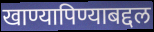
खाण्यापिण्याबद्दल